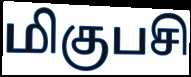
மிகுபசி